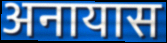
अनायास